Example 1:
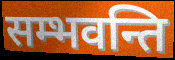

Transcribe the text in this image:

सम्भवन्ति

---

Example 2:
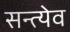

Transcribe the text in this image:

सन्त्येव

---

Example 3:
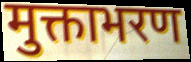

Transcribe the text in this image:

मुक्ताभरण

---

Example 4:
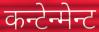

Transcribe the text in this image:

कन्टेन्मेन्ट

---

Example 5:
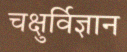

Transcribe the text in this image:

चक्षुर्विज्ञान